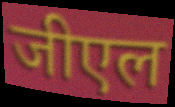
जीएल